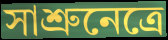
সাশ্রুনেত্রে